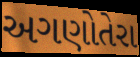
અગણોતેરા